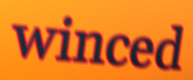
winced